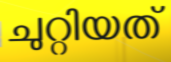
ചുറ്റിയത്